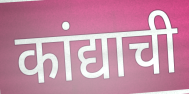
कांद्याची